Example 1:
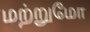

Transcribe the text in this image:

மற்றுமோ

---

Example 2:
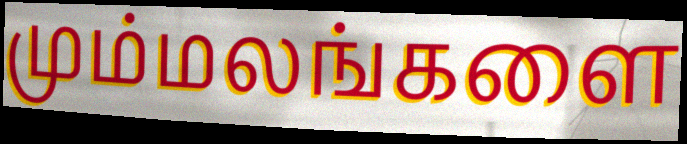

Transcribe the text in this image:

மும்மலங்களை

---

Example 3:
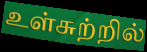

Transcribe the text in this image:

உள்சுற்றில்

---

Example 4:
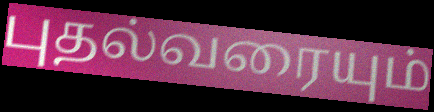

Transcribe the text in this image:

புதல்வரையும்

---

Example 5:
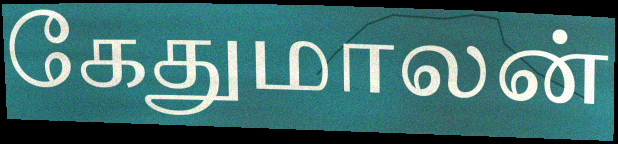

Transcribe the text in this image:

கேதுமாலன்